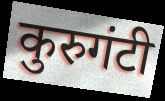
कुरुगंटी